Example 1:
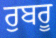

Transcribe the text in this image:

ਰੁਬਰੂ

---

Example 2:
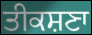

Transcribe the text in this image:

ਤੀਕਸ਼ਣਾ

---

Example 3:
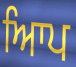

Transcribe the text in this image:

ਆਿਪ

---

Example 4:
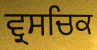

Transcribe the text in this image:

ਵ੍ਰਸਚਿਕ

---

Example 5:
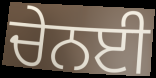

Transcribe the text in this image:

ਚੇਨਈ